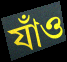
যাঁও